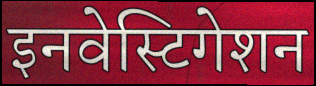
इनवेस्टिगेशन